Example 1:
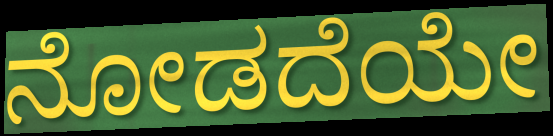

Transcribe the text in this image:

ನೋಡದೆಯೇ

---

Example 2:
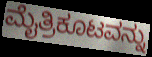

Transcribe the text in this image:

ಮೈತ್ರಿಕೂಟವನ್ನು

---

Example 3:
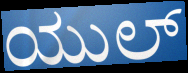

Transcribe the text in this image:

ಯುಲ್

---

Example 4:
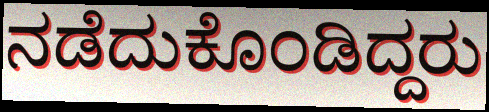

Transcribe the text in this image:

ನಡೆದುಕೊಂಡಿದ್ದರು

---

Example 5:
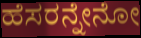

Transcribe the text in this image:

ಹೆಸರನ್ನೇನೋ